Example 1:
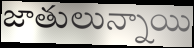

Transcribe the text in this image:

జాతులున్నాయి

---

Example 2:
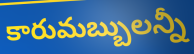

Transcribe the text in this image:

కారుమబ్బులన్నీ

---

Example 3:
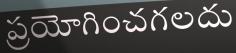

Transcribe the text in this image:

ప్రయోగించగలదు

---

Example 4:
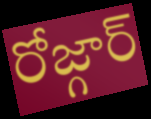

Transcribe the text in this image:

రోజ్గార్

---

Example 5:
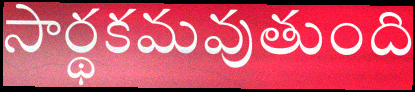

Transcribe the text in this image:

సార్థకమవుతుంది